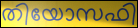
തിയോസഫി